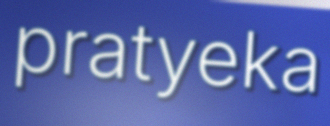
pratyeka